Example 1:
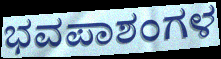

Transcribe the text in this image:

ಭವಪಾಶಂಗಳ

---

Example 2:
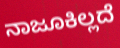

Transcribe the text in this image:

ನಾಜೂಕಿಲ್ಲದೆ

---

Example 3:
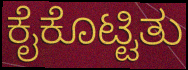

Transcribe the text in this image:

ಕೈಕೊಟ್ಟಿತು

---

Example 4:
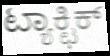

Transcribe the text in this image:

ಟ್ಯಾಕ್ಟಿಕ್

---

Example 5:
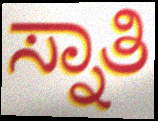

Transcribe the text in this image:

ಸ್ನಾತಿ